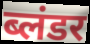
ब्लंडर